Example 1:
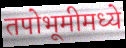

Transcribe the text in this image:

तपोभूमीमध्ये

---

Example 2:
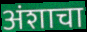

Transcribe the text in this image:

अंशाचा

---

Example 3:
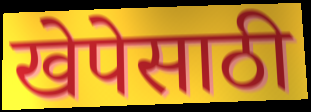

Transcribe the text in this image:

खेपेसाठी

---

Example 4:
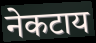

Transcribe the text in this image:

नेकटाय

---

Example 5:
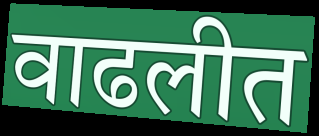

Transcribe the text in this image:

वाढलीत